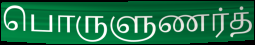
பொருளுணர்த்